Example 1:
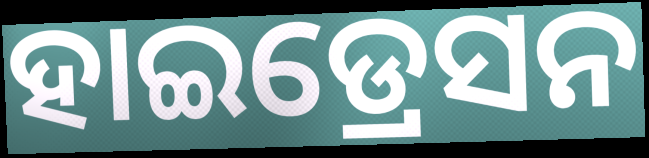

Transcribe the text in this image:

ହାଇଡ୍ରେସନ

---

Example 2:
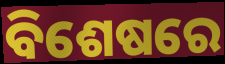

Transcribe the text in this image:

ବିଶେଷରେ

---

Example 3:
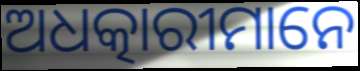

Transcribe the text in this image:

ଅଧତ୍କାରୀମାନେ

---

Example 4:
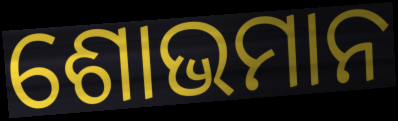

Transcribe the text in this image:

ଶୋଭମାନ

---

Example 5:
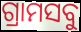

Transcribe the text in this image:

ଗ୍ରାମସବୁ